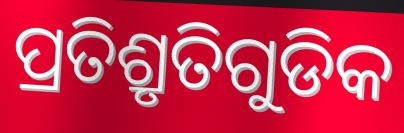
ପ୍ରତିଶ୍ରୃତିଗୁଡିକ